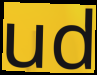
ud